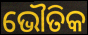
ଭୌତିକ